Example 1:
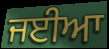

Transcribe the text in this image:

ਜਈਆ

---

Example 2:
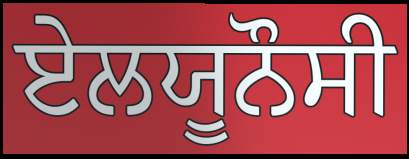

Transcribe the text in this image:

ਏਲਯੂਨੌਸੀ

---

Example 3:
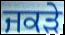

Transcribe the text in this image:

ਜਕੜੇ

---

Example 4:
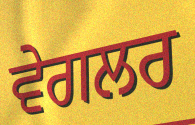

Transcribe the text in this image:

ਵੇਗਲਰ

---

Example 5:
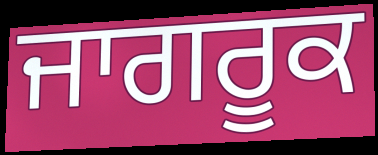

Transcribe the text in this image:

ਜਾਗਰੂਕ